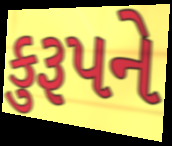
કુરૂપને